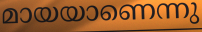
മായയാണെന്നു